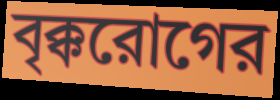
বৃক্করোগের